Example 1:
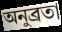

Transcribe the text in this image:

অনুব্রতা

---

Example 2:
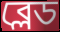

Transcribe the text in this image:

ব্লেড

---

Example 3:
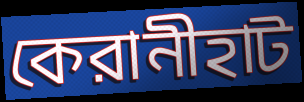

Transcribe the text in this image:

কেরানীহাট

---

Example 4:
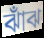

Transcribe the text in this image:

ঝাঁঝ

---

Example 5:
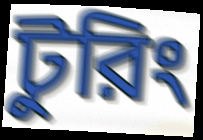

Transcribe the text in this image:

টুরিং